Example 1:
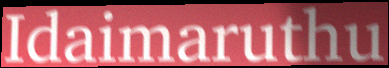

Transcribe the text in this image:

Idaimaruthu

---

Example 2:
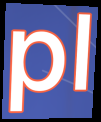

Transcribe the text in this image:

pl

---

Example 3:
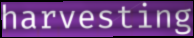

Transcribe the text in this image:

harvesting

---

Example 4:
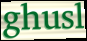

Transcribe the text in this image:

ghusl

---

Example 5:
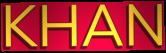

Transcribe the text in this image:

KHAN